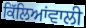
ਕਿੱਲਿਆਂਵਾਲੀ